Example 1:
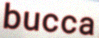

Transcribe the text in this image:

bucca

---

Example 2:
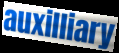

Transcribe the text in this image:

auxilliary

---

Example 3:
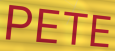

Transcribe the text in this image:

PETE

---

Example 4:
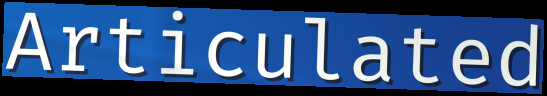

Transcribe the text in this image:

Articulated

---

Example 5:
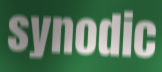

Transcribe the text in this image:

synodic